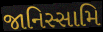
જાનિસ્સામિ